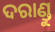
ଦରାଣ୍ଡୁ